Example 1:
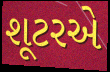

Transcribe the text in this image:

શૂટરએ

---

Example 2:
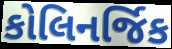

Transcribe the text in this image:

કોલિનર્જિક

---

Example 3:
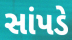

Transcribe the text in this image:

સાંપડે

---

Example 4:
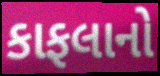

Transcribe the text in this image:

કાફલાનો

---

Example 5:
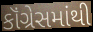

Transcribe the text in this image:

કૉંગ્રેસમાંથી